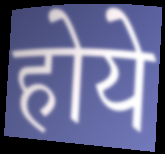
होये